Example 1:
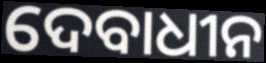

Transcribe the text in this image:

ଦେବାଧୀନ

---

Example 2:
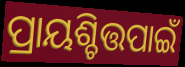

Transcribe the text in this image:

ପ୍ରାୟଶ୍ଚିତ୍ତପାଇଁ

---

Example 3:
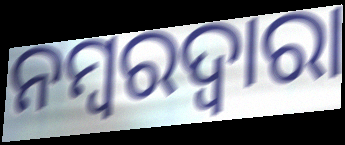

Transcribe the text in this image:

ନମ୍ବରଦ୍ୱାରା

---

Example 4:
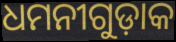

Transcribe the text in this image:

ଧମନୀଗୁଡ଼ାକ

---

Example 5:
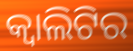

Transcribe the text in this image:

କ୍ୱାଲିଟିର